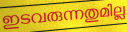
ഇടവരുന്നതുമില്ല